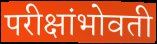
परीक्षांभोवती